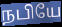
நபியே